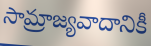
సామ్రాజ్యవాదానికీ